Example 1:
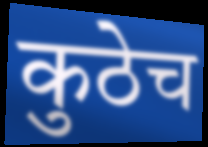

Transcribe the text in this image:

कुठेच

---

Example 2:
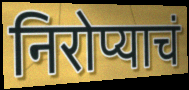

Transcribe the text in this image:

निरोप्याचं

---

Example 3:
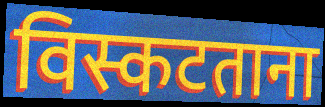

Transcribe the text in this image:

विस्कटताना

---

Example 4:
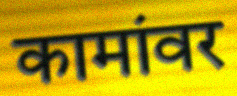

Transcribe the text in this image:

कामांवर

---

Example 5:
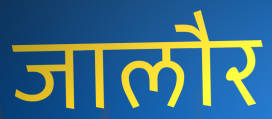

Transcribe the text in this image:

जालौर